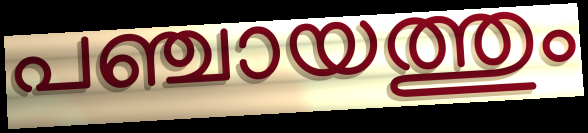
പഞ്ചായത്തും